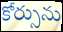
కోర్సును